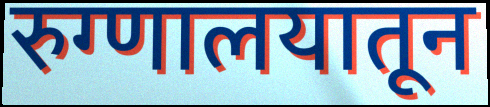
रुग्णालयातून